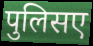
पुलिसए